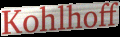
Kohlhoff